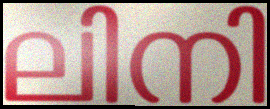
ലിനി